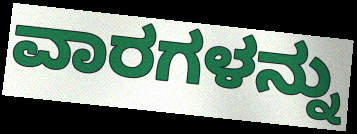
ವಾರಗಳನ್ನು